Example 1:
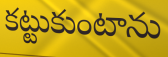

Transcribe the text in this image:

కట్టుకుంటాను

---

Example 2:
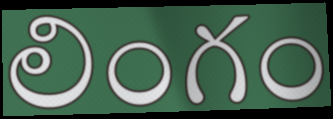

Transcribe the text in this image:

లింగం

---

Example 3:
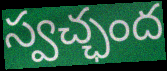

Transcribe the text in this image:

స్వచ్ఛంద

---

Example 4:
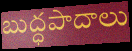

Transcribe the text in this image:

బుద్ధపాదాలు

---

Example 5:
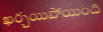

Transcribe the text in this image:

ఖర్చయిపోయింది